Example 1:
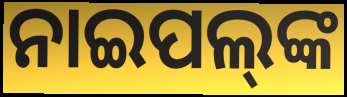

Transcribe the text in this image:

ନାଇପଲ୍‍ଙ୍କ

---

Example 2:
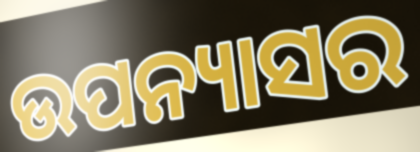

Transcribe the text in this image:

ଉପନ୍ୟାସର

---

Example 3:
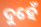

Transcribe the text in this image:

ଦୁହେଁ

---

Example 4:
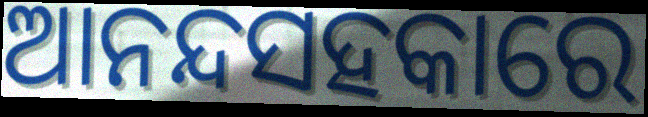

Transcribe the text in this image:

ଆନନ୍ଦସହକାରେ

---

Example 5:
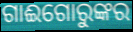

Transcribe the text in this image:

ଗାଈଗୋରୁଙ୍କର